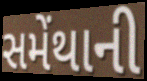
સમેંથાની